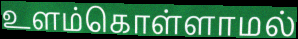
உளம்கொள்ளாமல்